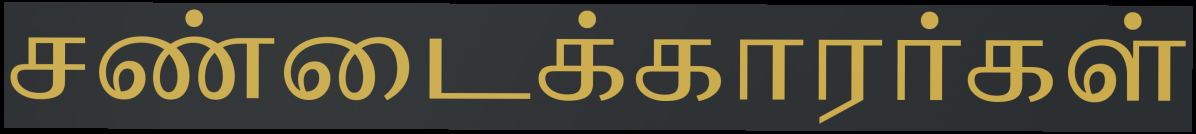
சண்டைக்காரர்கள்